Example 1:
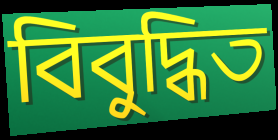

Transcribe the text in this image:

বিবুদ্ধিত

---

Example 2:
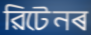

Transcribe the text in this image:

ৱিটেনৰ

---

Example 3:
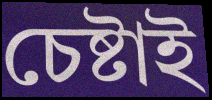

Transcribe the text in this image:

চেষ্টাই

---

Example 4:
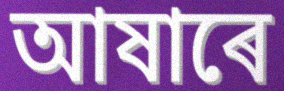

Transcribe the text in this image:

আষাৰে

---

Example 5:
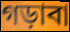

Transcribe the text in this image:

গড়াবা